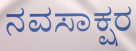
ನವಸಾಕ್ಷರ